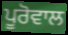
ਪੂਰੋਵਾਲ